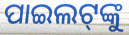
ପାଇଲଟ୍‌ଙ୍କୁ